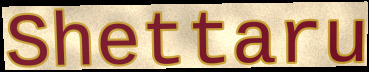
Shettaru